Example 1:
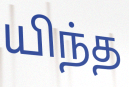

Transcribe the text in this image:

யிந்த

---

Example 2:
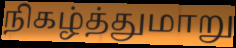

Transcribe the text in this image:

நிகழ்த்துமாறு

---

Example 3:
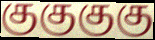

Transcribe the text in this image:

குகுகுகு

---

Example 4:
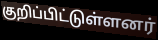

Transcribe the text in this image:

குறிப்பிட்டுள்ளனர்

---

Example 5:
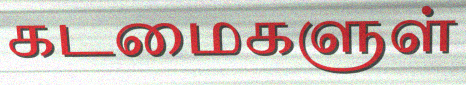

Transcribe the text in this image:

கடமைகளுள்